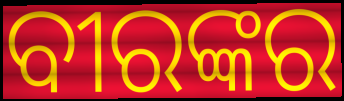
ବୀରଙ୍କର